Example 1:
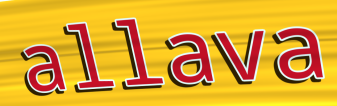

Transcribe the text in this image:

allava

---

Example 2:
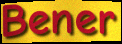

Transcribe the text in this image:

Bener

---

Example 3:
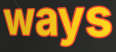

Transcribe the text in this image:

ways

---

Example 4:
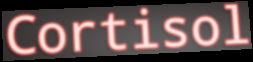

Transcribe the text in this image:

Cortisol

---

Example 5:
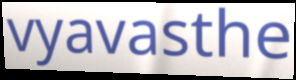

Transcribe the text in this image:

vyavasthe